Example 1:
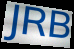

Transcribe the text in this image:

JRB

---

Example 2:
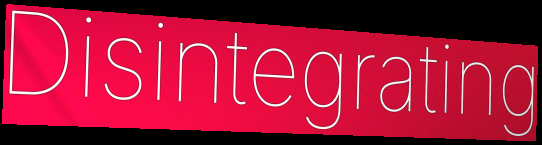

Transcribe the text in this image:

Disintegrating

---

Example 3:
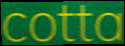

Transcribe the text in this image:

cotta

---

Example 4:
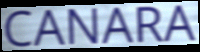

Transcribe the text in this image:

CANARA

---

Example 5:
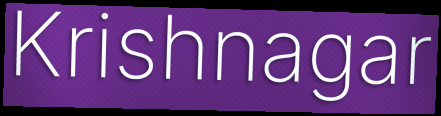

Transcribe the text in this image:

Krishnagar